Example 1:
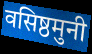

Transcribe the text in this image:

वसिष्ठमुनी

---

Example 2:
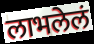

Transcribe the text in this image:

लाभलेलं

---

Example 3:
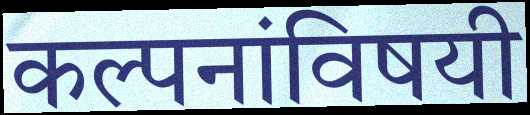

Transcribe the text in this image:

कल्पनांविषयी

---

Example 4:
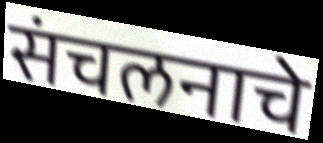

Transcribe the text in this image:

संचलनाचे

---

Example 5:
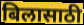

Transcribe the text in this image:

बिलासाठी